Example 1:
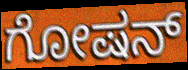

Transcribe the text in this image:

ಗೋಷನ್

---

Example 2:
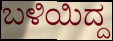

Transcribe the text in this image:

ಬಳಿಯಿದ್ದ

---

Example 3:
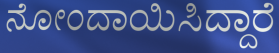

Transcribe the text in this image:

ನೋಂದಾಯಿಸಿದ್ದಾರೆ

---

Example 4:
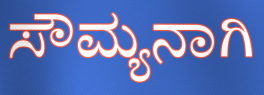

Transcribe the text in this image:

ಸೌಮ್ಯನಾಗಿ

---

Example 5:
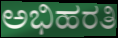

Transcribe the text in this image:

ಅಭಿಹರತಿ